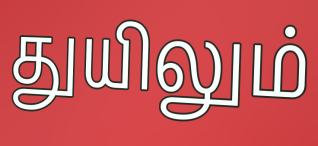
துயிலும்